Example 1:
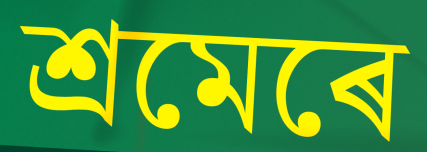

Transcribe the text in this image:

শ্ৰমেৰে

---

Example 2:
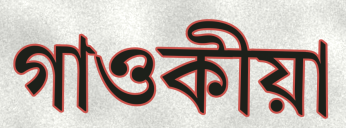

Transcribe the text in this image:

গাওকীয়া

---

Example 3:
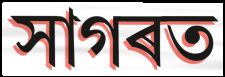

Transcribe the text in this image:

সাগৰত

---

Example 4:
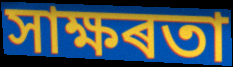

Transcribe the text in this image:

সাক্ষৰতা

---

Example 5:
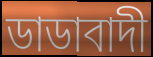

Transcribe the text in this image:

ডাডাবাদী